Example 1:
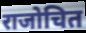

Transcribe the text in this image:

राजोचित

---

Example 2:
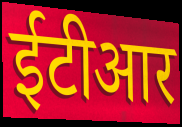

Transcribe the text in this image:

ईटीआर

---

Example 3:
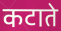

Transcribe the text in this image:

कटाते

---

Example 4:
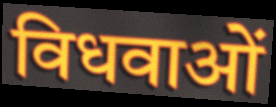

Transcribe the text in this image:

विधवाओं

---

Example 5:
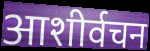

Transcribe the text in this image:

आशीर्वचन